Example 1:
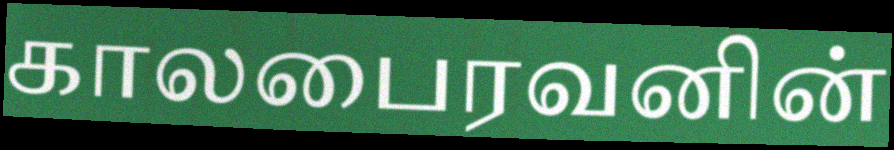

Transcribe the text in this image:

காலபைரவனின்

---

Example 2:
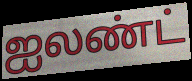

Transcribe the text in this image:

ஐலண்ட்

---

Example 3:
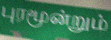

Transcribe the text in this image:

புரமூன்றும்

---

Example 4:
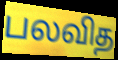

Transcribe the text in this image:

பலவித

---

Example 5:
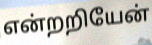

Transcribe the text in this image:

என்றறியேன்